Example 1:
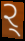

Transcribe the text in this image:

ર્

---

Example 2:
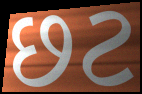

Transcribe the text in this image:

છટ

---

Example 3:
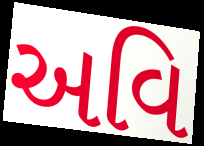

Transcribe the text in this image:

અવિ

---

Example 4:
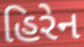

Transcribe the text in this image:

હિરેન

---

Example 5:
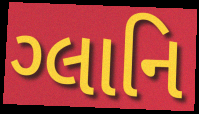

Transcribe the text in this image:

ગ્લાનિ